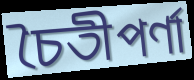
চৈতীপর্ণা